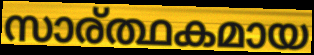
സാര്ത്ഥകമായ